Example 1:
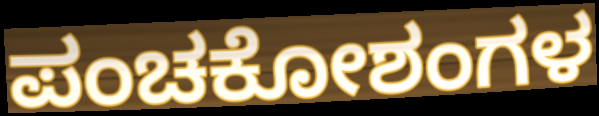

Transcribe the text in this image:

ಪಂಚಕೋಶಂಗಳ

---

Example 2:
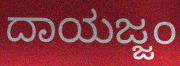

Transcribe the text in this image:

ದಾಯಜ್ಜಂ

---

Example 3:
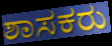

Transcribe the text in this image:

ಶಾಸಕರು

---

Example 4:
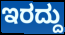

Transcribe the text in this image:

ಇರದ್ದು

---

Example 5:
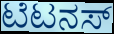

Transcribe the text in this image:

ಟೆಟನಸ್